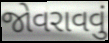
જોવરાવવું